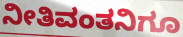
ನೀತಿವಂತನಿಗೂ